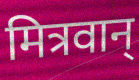
मित्रवान्